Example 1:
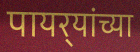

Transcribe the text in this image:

पायर्‍यांच्या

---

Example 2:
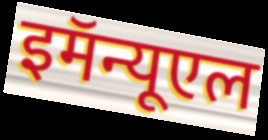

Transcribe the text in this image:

इमॅन्यूएल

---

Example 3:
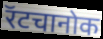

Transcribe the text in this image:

रॅटचानोक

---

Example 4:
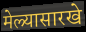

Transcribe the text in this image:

मेल्यासारखे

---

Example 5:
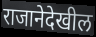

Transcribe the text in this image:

राजानेदेखील